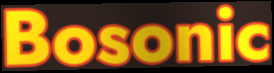
Bosonic